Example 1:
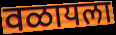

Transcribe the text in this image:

वळायला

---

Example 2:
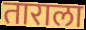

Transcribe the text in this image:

ताराला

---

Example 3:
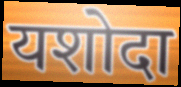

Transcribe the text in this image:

यशोदा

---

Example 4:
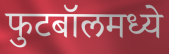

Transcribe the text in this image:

फुटबॉलमध्ये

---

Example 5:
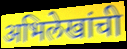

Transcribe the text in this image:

अभिलेखांची